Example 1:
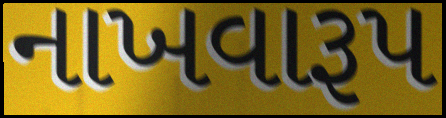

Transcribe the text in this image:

નાખવારૂપ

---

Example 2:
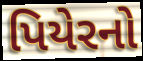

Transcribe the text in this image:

પિયેરનો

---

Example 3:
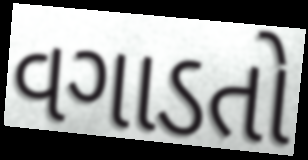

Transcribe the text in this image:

વગાડતો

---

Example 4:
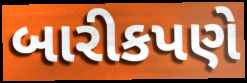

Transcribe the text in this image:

બારીકપણે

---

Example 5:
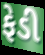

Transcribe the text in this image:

ફેડી